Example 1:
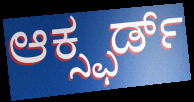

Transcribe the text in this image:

ಆಕ್ಸ್ಫರ್ಡ್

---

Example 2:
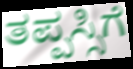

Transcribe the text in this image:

ತಪ್ಪಸ್ಸಿಗೆ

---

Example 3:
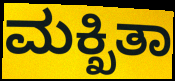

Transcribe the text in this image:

ಮಕ್ಖಿತಾ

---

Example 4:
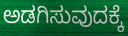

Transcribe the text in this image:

ಅಡಗಿಸುವುದಕ್ಕೆ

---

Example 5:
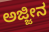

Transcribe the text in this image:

ಅಜ್ಜೀನ